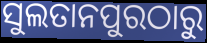
ସୁଲତାନପୁରଠାରୁ